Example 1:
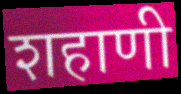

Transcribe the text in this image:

शहाणी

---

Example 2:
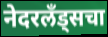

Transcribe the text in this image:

नेदरलँड्सचा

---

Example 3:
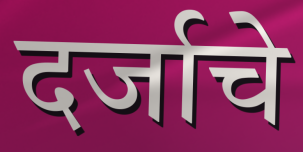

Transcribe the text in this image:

दर्जाचे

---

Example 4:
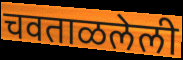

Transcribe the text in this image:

चवताळलेली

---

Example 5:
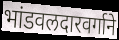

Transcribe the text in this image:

भांडवलदारवर्गाने